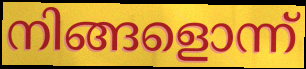
നിങ്ങളൊന്ന്